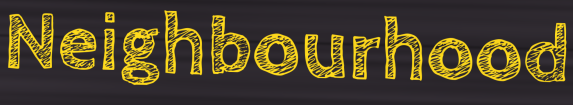
Neighbourhood